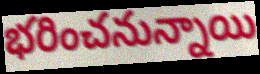
భరించనున్నాయి